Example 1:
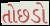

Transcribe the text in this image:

તોછડો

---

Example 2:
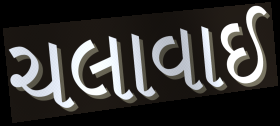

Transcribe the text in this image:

ચલાવાઈ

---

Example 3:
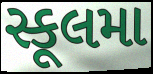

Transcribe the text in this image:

સ્કૂલમા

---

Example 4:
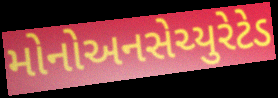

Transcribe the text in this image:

મોનોઅનસેચ્યુરેટેડ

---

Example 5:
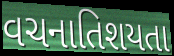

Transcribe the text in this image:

વચનાતિશયતા